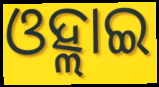
ଓହ୍ଲାଇ